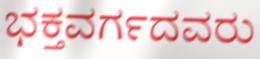
ಭಕ್ತವರ್ಗದವರು